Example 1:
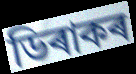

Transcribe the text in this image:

ডিৰাকৰ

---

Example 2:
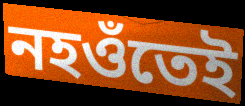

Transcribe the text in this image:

নহওঁতেই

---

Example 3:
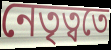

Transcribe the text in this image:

নেতৃত্বতে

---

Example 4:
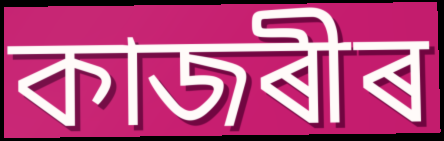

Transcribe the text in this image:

কাজৰীৰ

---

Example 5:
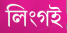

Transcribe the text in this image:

লিংগই